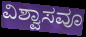
ವಿಶ್ವಾಸವೂ